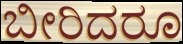
ಬೀರಿದರೂ